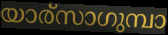
യാര്സാഗുമ്പാ